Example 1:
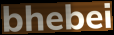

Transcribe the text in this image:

bhebei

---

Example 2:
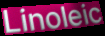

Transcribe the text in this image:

Linoleic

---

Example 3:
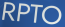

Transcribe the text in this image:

RPTO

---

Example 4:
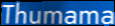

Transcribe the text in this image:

Thumama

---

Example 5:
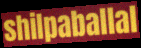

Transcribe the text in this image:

shilpaballal